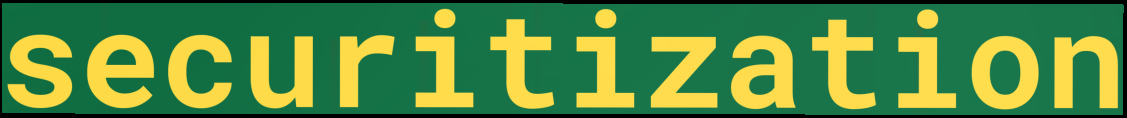
securitization